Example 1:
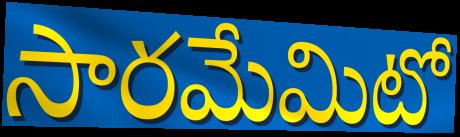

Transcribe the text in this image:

సారమేమిటో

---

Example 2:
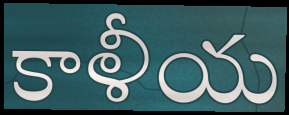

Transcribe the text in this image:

కాళీయ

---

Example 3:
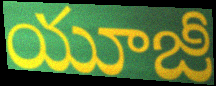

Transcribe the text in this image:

యూజీ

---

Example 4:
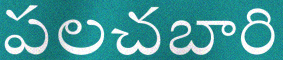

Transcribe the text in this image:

పలచబారి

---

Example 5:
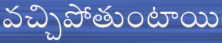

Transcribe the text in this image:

వచ్చిపోతుంటాయి